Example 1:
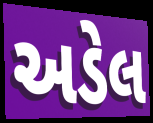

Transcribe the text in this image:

અડેલ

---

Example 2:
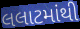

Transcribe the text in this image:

લલાટમાંથી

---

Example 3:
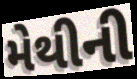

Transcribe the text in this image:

મેથીની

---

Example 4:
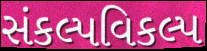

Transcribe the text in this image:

સંકલ્પવિકલ્પ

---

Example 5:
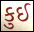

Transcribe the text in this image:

કુઈ